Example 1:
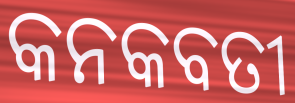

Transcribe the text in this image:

କନକବତୀ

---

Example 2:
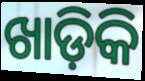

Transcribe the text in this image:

ଖାଡ଼ିକି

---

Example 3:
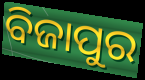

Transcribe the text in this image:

ବିଜାପୁର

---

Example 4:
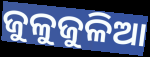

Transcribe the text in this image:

ଜୁଳୁଜୁଳିଆ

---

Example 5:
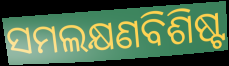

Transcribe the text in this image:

ସମଲକ୍ଷଣବିଶିଷ୍ଟ